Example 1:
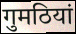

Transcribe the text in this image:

गुमठियां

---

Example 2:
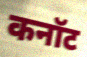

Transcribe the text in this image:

कनॉट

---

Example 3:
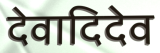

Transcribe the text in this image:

देवादिदेव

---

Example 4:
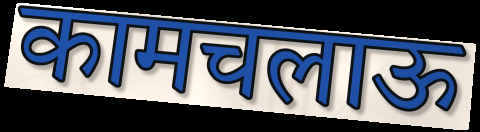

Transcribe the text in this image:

कामचलाऊ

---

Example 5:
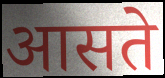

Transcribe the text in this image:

आसते